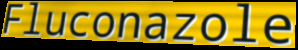
Fluconazole